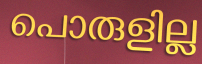
പൊരുളില്ല